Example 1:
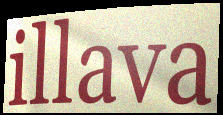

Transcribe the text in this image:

illava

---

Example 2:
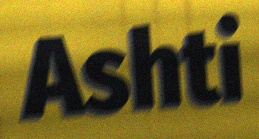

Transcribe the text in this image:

Ashti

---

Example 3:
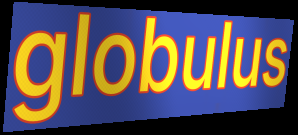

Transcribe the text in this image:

globulus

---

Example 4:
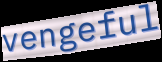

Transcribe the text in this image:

vengeful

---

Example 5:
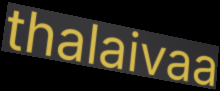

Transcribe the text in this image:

thalaivaa